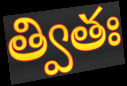
త్వితః